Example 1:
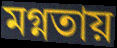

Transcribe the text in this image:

মগ্নতায়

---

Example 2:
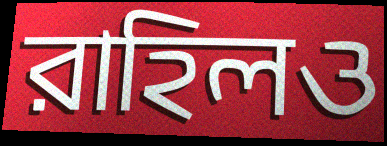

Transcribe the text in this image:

রাহিলও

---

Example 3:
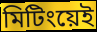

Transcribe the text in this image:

মিটিংয়েই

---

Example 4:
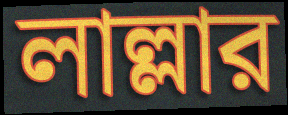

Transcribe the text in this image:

লাল্লার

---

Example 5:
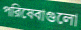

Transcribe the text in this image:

পরিষেবাগুলো